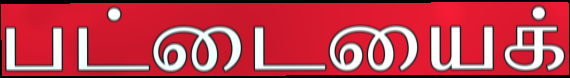
பட்டையைக்